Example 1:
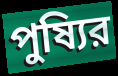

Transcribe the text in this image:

পুষ্যির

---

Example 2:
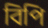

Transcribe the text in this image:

বিপি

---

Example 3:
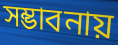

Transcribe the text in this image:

সম্ভাবনায়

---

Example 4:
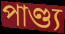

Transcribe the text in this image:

পাণ্ড্য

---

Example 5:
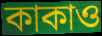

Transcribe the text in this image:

কাকাও